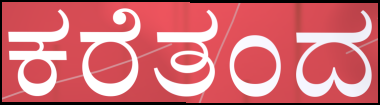
ಕರೆತಂದ